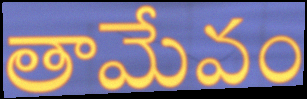
తామేవం